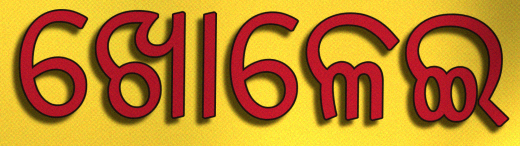
ଖୋଳେଇ